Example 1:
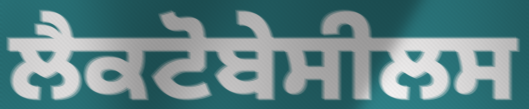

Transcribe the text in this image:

ਲੈਕਟੋਬੇਸੀਲਸ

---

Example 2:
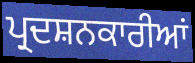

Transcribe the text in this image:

ਪ੍ਰਦਸ਼ਨਕਾਰੀਆਂ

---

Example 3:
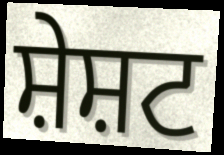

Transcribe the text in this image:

ਸ਼ੇਸ਼ਟ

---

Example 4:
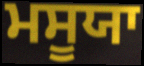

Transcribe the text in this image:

ਮਸੂਯਾ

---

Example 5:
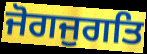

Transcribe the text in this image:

ਜੋਗਜੁਗਤਿ